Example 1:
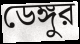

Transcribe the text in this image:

ডেঙ্গুর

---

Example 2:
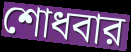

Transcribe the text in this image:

শোধবার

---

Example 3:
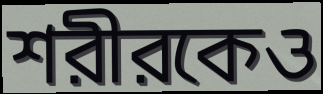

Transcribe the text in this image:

শরীরকেও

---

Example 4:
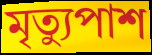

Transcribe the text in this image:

মৃত্যুপাশ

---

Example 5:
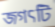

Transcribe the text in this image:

জগৎটি